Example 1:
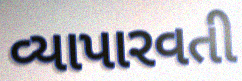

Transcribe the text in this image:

વ્યાપારવતી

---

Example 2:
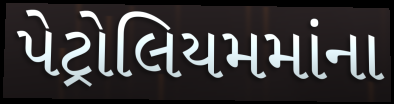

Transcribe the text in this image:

પેટ્રોલિયમમાંના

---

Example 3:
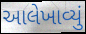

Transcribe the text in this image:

આલેખાવ્યું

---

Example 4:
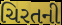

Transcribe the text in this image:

ચિરતની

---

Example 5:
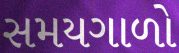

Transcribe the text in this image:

સમયગાળો